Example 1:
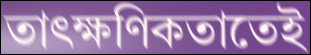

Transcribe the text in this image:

তাৎক্ষণিকতাতেই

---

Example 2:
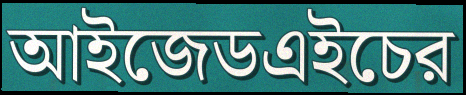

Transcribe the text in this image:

আইজেডএইচের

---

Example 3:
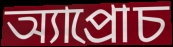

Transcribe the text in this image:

অ্যাপ্রোচ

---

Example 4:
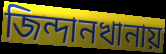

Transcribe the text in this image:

জিন্দানখানায়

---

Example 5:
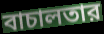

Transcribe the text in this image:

বাচালতার